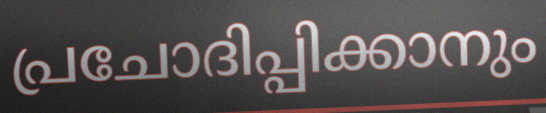
പ്രചോദിപ്പിക്കാനും